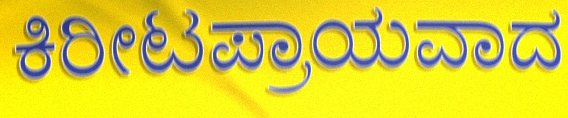
ಕಿರೀಟಪ್ರಾಯವಾದ